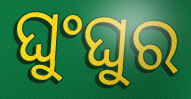
ଘୁଂଘୁର